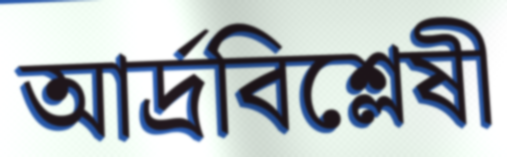
আর্দ্রবিশ্লেষী